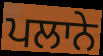
ਪਲਾਨੇ